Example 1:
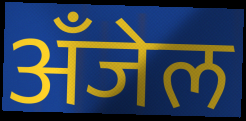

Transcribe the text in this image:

अँजेल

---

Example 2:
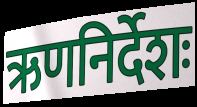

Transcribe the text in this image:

ऋणनिर्देशः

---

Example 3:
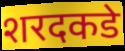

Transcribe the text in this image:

शरदकडे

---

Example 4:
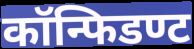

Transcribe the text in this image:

कॉन्फिडण्ट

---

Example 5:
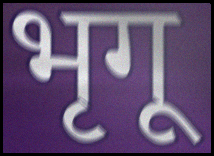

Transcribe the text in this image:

भृगू